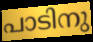
പാടിനു